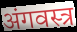
अंगवस्त्र